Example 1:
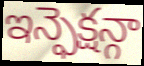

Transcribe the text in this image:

ఇన్ఫెక్షన్గా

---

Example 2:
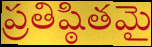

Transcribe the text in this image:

ప్రతిష్ఠితమై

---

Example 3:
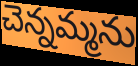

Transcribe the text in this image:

చెన్నమ్మను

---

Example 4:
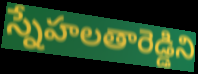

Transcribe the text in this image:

స్నేహలతారెడ్డిని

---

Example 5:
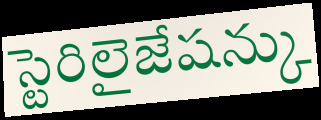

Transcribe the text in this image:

స్టెరిలైజేషన్కు